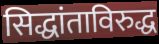
सिद्धांताविरुद्ध